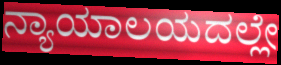
ನ್ಯಾಯಾಲಯದಲ್ಲೇ